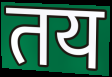
तय